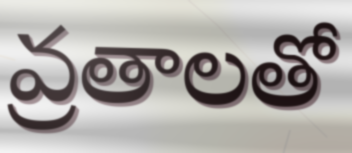
వ్రతాలతో